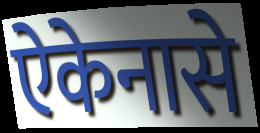
ऐकेनासे